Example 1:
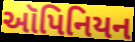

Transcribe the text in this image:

ઑપિનિયન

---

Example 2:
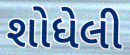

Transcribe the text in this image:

શોધેલી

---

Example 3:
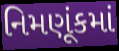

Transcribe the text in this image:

નિમણૂંકમાં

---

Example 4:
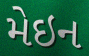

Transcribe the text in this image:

મેઇન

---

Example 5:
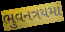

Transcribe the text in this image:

ભુવનત્રયમાં